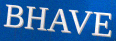
BHAVE